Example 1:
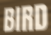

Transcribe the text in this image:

BIRD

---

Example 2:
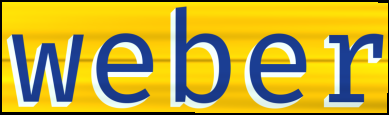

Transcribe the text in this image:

weber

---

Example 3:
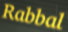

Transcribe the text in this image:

Rabbal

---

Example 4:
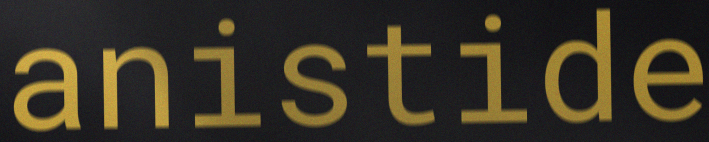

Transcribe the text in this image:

anistide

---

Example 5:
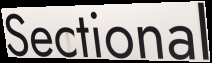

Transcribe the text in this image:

Sectional